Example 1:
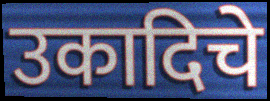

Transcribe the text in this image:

उकादिचे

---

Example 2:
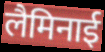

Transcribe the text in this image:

लैमिनाई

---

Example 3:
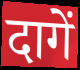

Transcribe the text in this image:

दागें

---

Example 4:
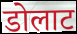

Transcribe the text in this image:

डोलाट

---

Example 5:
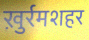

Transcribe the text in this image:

ख़ुर्रमशहर